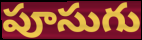
పూసుగు